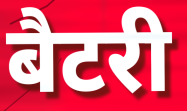
बैटरी